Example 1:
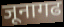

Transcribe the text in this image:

जूनागढ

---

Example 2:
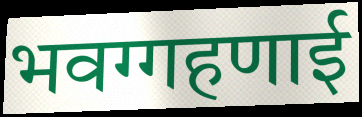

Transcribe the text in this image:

भवग्गहणाई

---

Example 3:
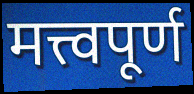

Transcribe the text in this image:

मत्त्वपूर्ण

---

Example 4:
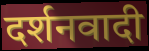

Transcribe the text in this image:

दर्शनवादी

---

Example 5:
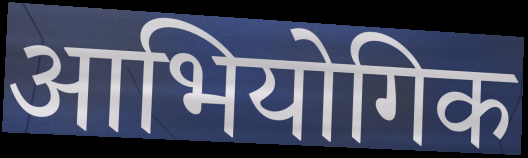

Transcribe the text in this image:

आभियोगिक